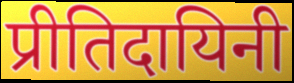
प्रीतिदायिनी